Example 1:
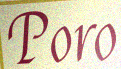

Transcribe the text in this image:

Poro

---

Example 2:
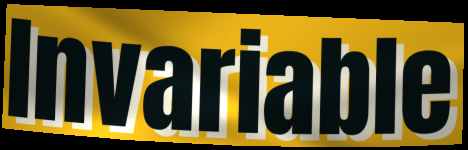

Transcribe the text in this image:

Invariable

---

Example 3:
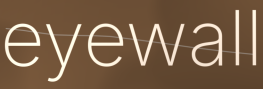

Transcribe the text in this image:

eyewall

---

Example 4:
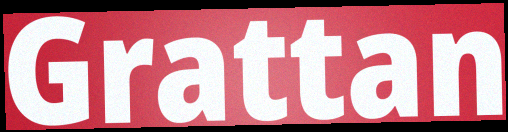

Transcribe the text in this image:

Grattan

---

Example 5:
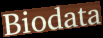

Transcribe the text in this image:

Biodata